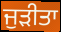
ਜੁੜੀਤਾ